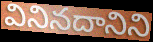
వినినదానిని